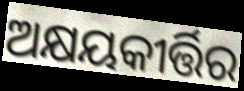
ଅକ୍ଷୟକୀର୍ତ୍ତିର